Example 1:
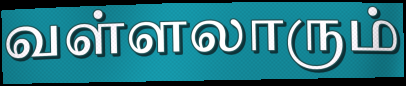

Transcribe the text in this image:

வள்ளலாரும்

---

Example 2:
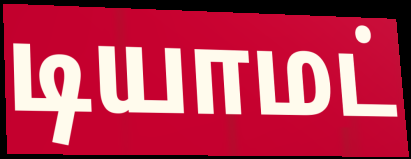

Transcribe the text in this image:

டியாமட்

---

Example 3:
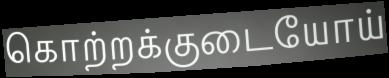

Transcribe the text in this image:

கொற்றக்குடையோய்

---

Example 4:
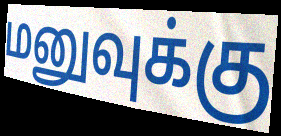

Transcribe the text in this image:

மனுவுக்கு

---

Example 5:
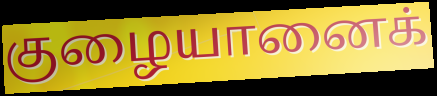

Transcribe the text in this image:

குழையானைக்